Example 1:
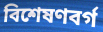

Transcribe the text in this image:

বিশেষণবর্গ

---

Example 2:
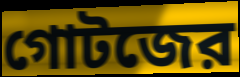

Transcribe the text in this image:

গোটজের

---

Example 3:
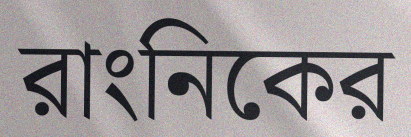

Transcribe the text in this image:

রাংনিকের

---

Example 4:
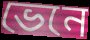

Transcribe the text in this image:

ভেনে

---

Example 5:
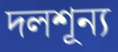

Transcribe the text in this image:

দলশূন্য